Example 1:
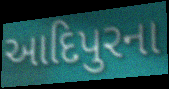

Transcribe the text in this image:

આદિપુરના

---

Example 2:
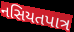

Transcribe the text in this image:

નસિયતપાત્ર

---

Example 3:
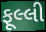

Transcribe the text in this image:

ફૂલ્લી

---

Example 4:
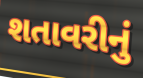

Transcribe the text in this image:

શતાવરીનું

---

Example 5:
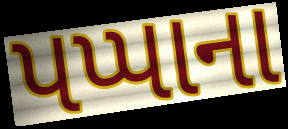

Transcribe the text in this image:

પપ્પાના